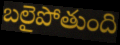
బలైపోతుంది